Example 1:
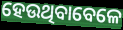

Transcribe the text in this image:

ହେଉଥିବାବେଳେ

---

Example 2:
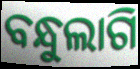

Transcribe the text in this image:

ବନ୍ଧୁଲାଗି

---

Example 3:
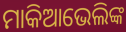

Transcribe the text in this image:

ମାକିଆଭେଲିଙ୍କ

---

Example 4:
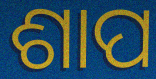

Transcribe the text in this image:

ଶାପ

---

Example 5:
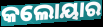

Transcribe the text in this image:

କଲୋୟାର